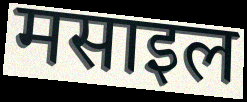
मसाइल